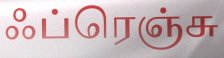
ஃப்ரெஞ்சு